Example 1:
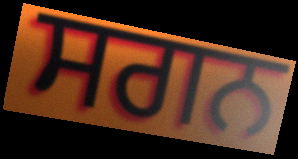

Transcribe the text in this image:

ਸਗਨ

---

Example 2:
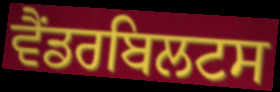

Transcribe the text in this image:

ਵੈਂਡਰਬਿਲਟਸ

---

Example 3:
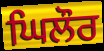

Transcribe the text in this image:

ਘਿਲੌਰ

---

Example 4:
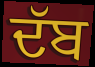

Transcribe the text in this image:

ਦੱਬ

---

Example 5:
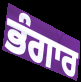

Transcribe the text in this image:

ਭੰਗਾਰ